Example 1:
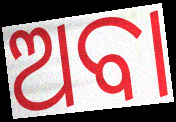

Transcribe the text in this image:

ଅବା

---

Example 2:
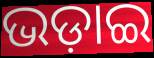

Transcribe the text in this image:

ଭଡ଼ାଇ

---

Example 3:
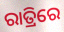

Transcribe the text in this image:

ରାତ୍ରିରେ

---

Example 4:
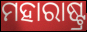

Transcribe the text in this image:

ମହାରାଷ୍ଟ୍ର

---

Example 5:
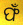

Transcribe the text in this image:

ଫଁ